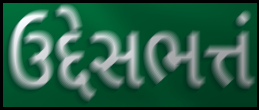
ઉદ્દેસભત્તં